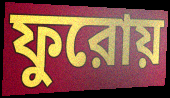
ফুরোয়